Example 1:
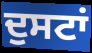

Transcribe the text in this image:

ਦੁਸਟਾਂ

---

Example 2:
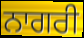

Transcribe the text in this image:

ਨਾਗਰੀ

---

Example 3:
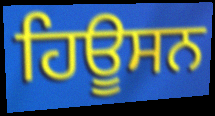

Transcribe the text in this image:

ਹਿਊਸਨ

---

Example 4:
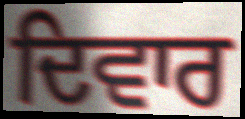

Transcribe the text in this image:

ਦਿਵਾਰ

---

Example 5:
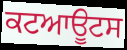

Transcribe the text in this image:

ਕਟਆਊਟਸ